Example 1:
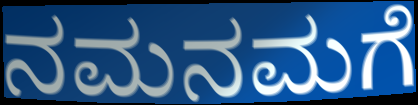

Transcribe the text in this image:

ನಮನಮಗೆ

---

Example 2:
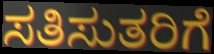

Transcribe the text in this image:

ಸತಿಸುತರಿಗೆ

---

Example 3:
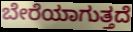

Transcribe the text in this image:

ಬೇರೆಯಾಗುತ್ತದೆ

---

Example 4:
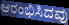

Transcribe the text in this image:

ಆರಂಭಿಸಿದವು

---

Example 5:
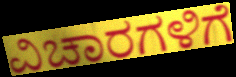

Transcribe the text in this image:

ವಿಚಾರಗಳಿಗೆ